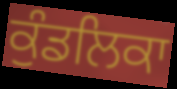
ਕੁੰਡਲਿਕਾ